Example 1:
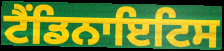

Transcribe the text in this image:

ਟੈਂਡਿਨਾਇਟਿਸ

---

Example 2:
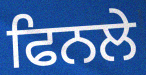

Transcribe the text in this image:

ਫਿਨਲੇ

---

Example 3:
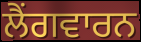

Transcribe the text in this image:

ਲੈਂਗਵਾਰਨ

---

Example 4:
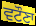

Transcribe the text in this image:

ਵਟੌਣਾ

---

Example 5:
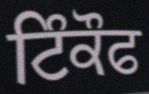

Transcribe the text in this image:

ਟਿੰਕੌਫ